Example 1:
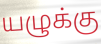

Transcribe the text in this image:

யழுக்கு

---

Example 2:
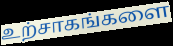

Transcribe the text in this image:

உற்சாகங்களை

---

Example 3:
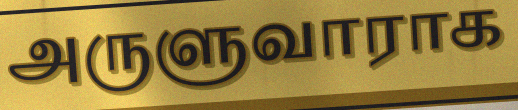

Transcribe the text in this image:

அருளுவாராக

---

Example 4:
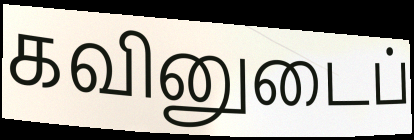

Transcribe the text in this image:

கவினுடைப்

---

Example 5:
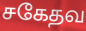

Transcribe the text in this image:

சகேதவ